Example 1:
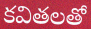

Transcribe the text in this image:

కవితలతో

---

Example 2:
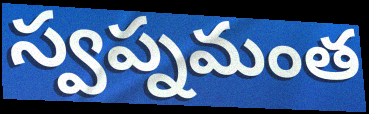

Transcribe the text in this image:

స్వప్నమంత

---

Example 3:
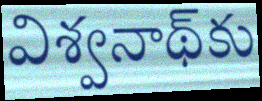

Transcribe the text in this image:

విశ్వనాథ్‌కు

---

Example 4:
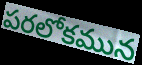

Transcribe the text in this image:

పరలోకమున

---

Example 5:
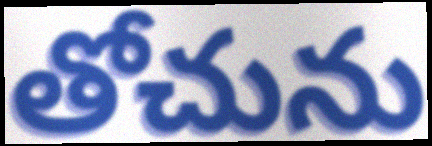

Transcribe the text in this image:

తోచును